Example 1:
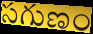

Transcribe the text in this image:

సగుణం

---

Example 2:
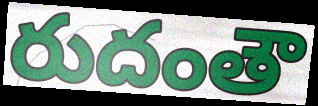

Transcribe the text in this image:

రుదంతౌ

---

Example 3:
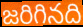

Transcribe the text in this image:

జరిగినది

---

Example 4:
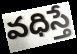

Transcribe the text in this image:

వధిస్తే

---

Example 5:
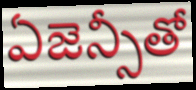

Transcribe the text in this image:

ఏజెన్సీతో